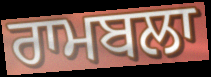
ਰਾਮਬਲਾ